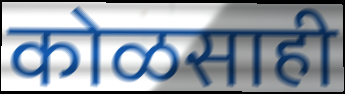
कोळसाही